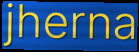
jherna